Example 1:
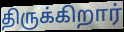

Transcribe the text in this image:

திருக்கிறார்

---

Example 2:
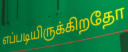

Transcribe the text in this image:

எப்படியிருக்கிறதோ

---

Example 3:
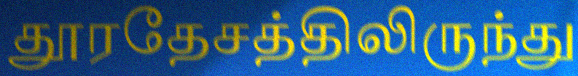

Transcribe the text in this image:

தூரதேசத்திலிருந்து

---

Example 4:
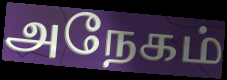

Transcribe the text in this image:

அநேகம்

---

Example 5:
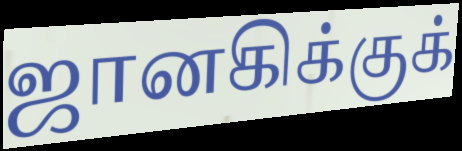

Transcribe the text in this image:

ஜானகிக்குக்